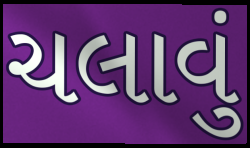
ચલાવું